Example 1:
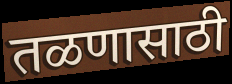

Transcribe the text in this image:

तळणासाठी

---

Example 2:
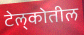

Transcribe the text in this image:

टेल्कोतील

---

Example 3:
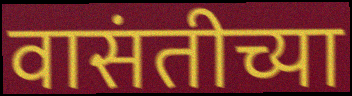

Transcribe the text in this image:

वासंतीच्या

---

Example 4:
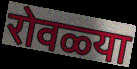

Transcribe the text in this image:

रोवळ्या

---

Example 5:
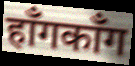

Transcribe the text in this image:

हाँगकाँग